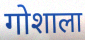
गोशाला